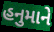
હનુમાને